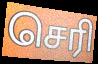
செரி